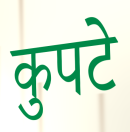
कुपटे